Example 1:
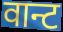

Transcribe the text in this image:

वान्ट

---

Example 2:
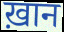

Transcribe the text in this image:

ख़ान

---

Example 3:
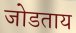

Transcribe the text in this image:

जोडताय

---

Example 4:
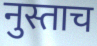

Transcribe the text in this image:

नुस्ताच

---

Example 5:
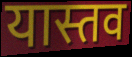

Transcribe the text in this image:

यास्तव